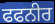
ਫਫਨੀਰ